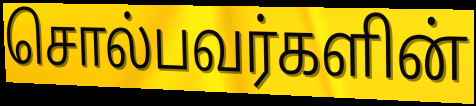
சொல்பவர்களின்